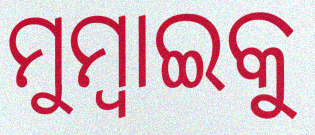
ମୁମ୍ୱାଇକୁ